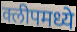
क्लीपमध्ये